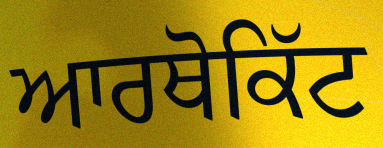
ਆਰਥੋਕਿੱਟ